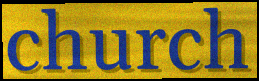
church